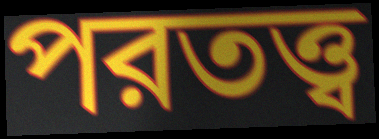
পরতত্ত্ব